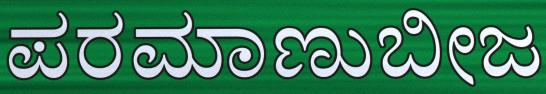
ಪರಮಾಣುಬೀಜ